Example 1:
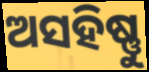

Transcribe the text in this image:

ଅସହିଷ୍ଣୁ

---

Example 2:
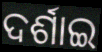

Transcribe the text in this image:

ଦର୍ଶାଇ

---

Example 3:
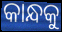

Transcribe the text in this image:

କାନ୍ଧକୁ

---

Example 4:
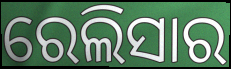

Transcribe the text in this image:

ରେଲିସାର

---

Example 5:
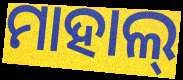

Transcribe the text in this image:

ମାହାଲ୍